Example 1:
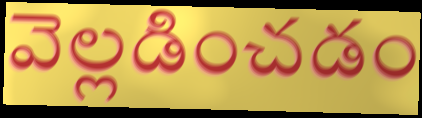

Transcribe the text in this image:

వెల్లడించడం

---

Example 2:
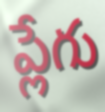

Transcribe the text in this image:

ప్లేగు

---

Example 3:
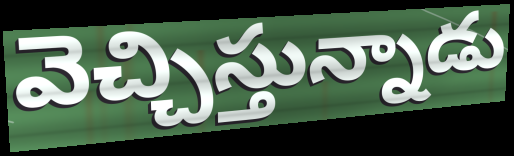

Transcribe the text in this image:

వెచ్చిస్తున్నాడు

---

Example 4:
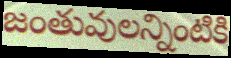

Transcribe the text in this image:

జంతువులన్నింటికి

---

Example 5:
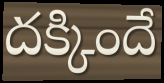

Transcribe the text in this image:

దక్కిందే